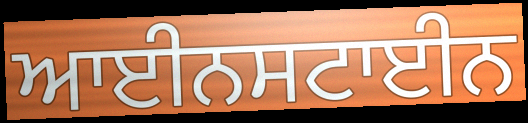
ਆਈਨਸਟਾਈਨ